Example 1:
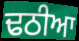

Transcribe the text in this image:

ਢਠੀਆ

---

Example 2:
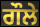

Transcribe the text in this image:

ਗੌਲੇ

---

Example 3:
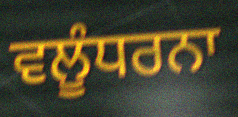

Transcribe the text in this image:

ਵਲੂੰਧਰਨਾ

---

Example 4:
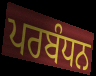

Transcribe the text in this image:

ਪਰਬੰਧਨ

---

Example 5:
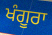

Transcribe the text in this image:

ਖੰਗੂਰਾ